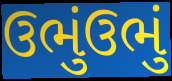
ઉભુંઉભું